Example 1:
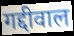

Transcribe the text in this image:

गद्दीवाल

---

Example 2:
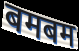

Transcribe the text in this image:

बमबम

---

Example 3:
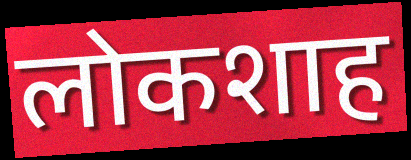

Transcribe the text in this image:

लोकशाह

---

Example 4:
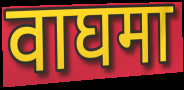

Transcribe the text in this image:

वाघमा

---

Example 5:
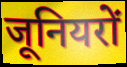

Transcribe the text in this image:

जूनियरों